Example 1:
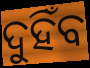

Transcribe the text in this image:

ଦୁହିଁବ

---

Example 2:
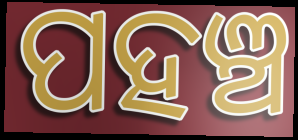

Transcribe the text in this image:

ପହଞ୍ଚ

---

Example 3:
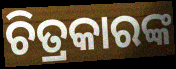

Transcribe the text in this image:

ଚିତ୍ରକାରଙ୍କ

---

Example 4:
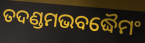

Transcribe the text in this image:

ତଦଣ୍ଡମଭବଦ୍ଧୈମଂ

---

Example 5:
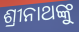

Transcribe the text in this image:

ଶ୍ରୀନାଥଙ୍କୁ